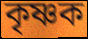
কৃষ্ণক